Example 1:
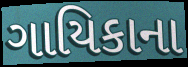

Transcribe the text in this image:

ગાયિકાના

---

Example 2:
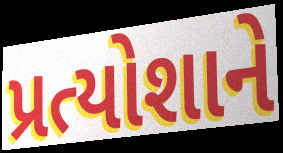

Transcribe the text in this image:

પ્રત્યોશાને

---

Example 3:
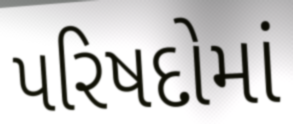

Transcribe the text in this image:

પરિષદોમાં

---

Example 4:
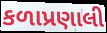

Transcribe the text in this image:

કળાપ્રણાલી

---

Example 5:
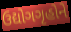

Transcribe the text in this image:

ઉદ્યોગગૃહોને